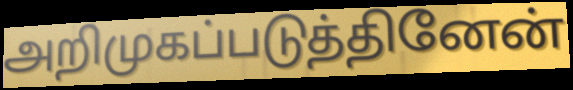
அறிமுகப்படுத்தினேன்